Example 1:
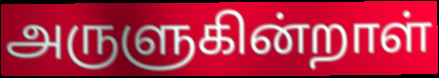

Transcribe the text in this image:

அருளுகின்றாள்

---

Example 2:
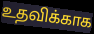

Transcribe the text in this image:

உதவிக்காக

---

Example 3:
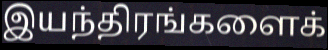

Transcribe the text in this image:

இயந்திரங்களைக்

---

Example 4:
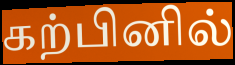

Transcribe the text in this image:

கற்பினில்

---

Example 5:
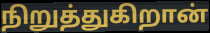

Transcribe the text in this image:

நிறுத்துகிறான்